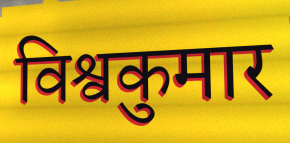
विश्वकुमार